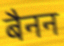
बैनन